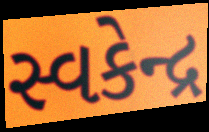
સ્વકેન્દ્ર